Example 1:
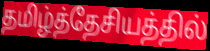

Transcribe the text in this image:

தமிழ்த்தேசியத்தில்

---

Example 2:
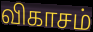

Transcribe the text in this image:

விகாசம்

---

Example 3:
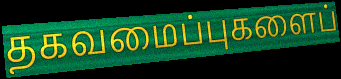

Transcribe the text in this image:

தகவமைப்புகளைப்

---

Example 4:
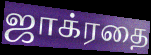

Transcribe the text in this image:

ஜாக்ரதை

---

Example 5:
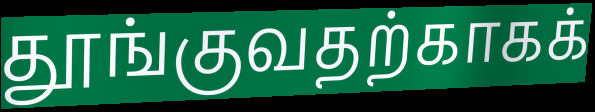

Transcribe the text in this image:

தூங்குவதற்காகக்